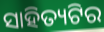
ସାହିତ୍ୟଟିର